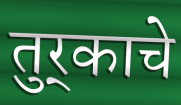
तुर्काचे